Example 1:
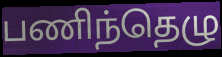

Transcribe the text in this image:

பணிந்தெழு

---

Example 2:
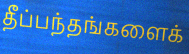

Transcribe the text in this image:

தீப்பந்தங்களைக்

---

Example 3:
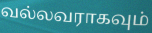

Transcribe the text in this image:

வல்லவராகவும்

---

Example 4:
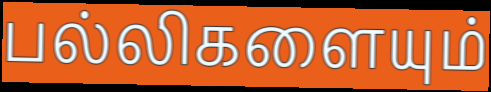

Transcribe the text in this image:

பல்லிகளையும்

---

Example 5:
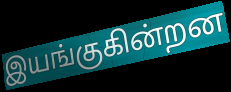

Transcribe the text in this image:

இயங்குகின்றன